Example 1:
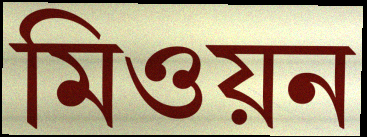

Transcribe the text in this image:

মিওয়ন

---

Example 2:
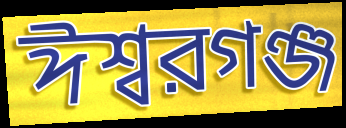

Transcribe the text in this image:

ঈশ্বরগঞ্জ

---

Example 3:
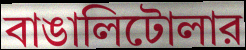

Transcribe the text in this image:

বাঙালিটোলার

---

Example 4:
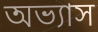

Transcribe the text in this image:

অভ্যাস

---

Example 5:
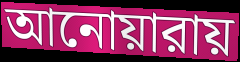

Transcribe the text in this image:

আনোয়ারায়